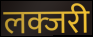
लक्‍जरी